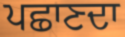
ਪਛਾਣਦਾ